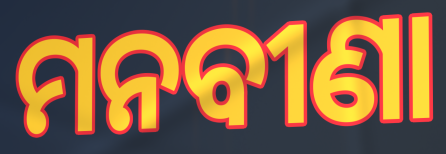
ମନବୀଣା